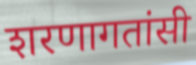
शरणागतांसी